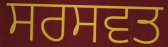
ਸਰਸਵਤ